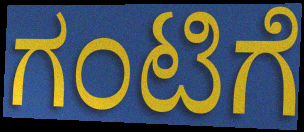
ಗಂಟಿಗೆ